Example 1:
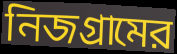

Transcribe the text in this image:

নিজগ্রামের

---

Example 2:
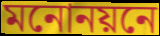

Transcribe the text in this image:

মনোনয়নে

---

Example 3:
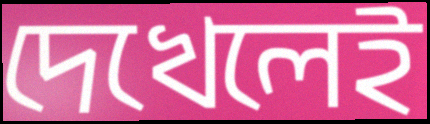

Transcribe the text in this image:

দেখেলেই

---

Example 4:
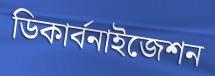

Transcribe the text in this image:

ডিকার্বনাইজেশন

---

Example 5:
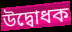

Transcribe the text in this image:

উদ্বোধক